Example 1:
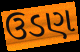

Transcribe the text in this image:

ઉડણ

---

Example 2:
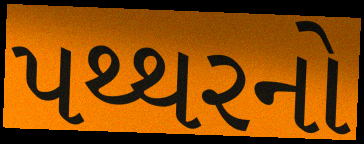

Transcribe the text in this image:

પથ્થરનો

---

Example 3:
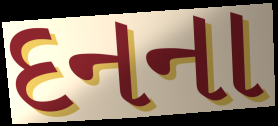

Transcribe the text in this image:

દનના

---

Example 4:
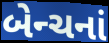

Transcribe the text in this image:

બેન્ચનાં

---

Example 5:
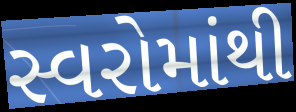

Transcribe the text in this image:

સ્વરોમાંથી